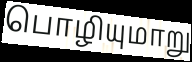
பொழியுமாறு